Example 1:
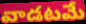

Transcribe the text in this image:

వాడటమే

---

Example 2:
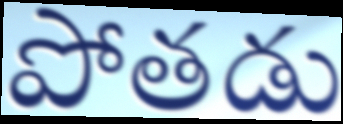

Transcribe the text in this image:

పోతడు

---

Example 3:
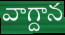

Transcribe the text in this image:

వాగ్దాన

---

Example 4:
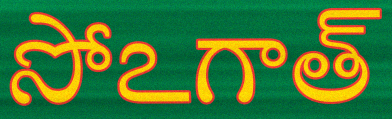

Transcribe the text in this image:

సోఽగాత్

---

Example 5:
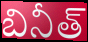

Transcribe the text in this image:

బినీత్